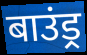
बाउंड्र